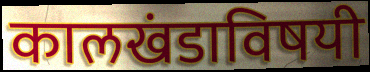
कालखंडाविषयी